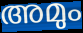
അമും